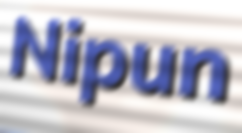
Nipun